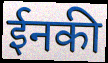
ईनकी